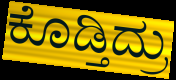
ಕೊಡ್ತಿದ್ರು